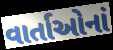
વાર્તાઓનાં